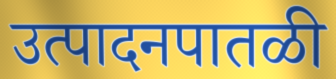
उत्पादनपातळी